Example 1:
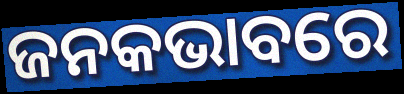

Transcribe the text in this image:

ଜନକଭାବରେ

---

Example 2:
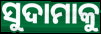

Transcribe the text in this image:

ସୁଦାମାକୁ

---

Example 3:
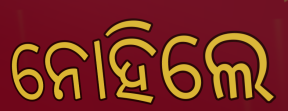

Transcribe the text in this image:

ନୋହିଲେ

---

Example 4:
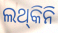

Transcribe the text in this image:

ଲଥ୍‌କିନି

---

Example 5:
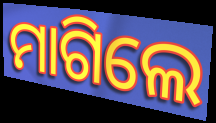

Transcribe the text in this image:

ମାଗିଲେ